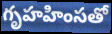
గృహహింసతో